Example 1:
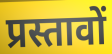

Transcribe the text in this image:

प्रस्तावों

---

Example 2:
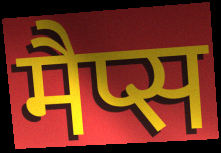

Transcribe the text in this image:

मैप्स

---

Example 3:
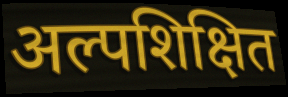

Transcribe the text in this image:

अल्पशिक्षित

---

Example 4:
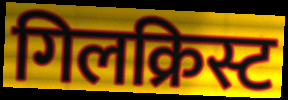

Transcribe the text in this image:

गिलक्रिस्ट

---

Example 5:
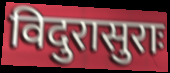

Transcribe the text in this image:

विदुरासुराः